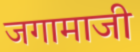
जगामाजी